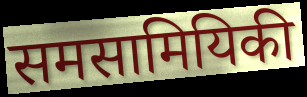
समसामियिकी